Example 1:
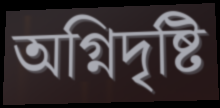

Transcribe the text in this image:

অগ্নিদৃষ্টি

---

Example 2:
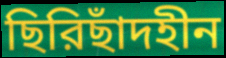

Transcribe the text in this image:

ছিরিছাঁদহীন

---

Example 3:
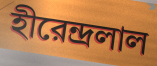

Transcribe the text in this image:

হীরেন্দ্রলাল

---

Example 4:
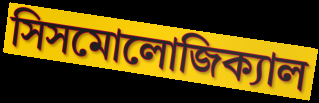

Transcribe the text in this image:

সিসমোলোজিক্যাল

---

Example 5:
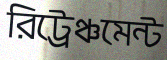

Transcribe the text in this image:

রিট্রেঞ্চমেন্ট